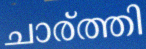
ചാര്ത്തി